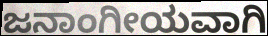
ಜನಾಂಗೀಯವಾಗಿ